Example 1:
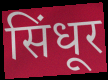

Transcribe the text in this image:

सिंधूर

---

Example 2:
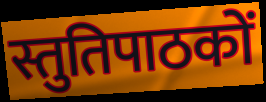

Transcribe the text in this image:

स्तुतिपाठकों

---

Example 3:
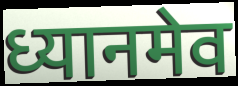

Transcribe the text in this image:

ध्यानमेव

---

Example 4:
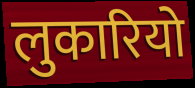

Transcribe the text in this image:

लुकारियो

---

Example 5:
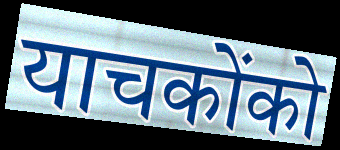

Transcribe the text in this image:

याचकोंको